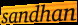
sandhan